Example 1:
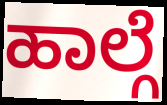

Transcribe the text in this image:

ಹಾಲ್ಗೆ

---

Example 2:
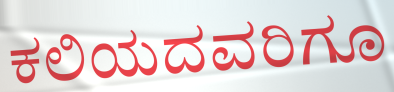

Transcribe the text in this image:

ಕಲಿಯದವರಿಗೂ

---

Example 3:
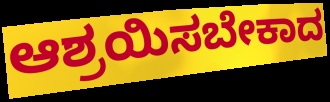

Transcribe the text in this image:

ಆಶ್ರಯಿಸಬೇಕಾದ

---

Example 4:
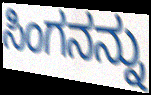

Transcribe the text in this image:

ಸಿಂಗನನ್ನು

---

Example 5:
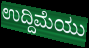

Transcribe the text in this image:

ಉದ್ದಿಮೆಯು